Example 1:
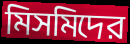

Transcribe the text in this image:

মিসমিদের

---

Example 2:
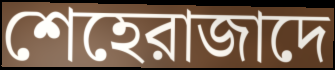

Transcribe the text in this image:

শেহেরাজাদে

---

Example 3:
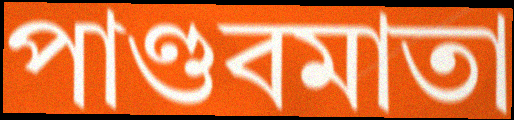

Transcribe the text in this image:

পাণ্ডবমাতা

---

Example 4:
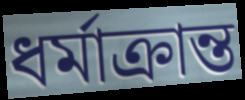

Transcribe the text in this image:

ধর্মাক্রান্ত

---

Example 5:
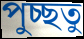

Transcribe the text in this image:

পুচ্ছতু